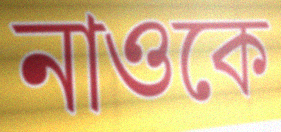
নাওকে